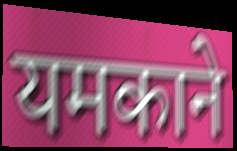
यमकाने